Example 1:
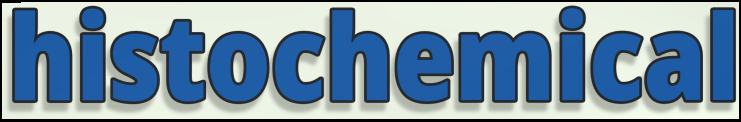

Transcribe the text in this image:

histochemical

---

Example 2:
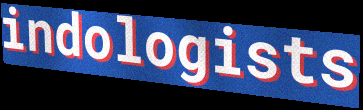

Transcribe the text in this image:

indologists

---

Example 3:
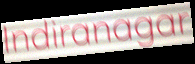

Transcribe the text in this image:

Indiranagar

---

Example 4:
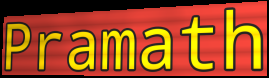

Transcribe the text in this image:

Pramath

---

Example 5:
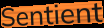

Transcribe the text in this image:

Sentient